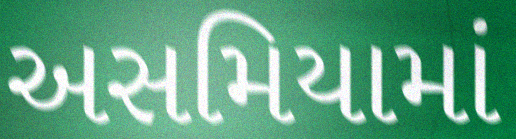
અસમિયામાં